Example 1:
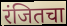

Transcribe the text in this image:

रंजितचा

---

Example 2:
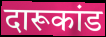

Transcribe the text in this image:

दारूकांड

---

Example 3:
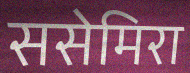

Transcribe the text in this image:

ससेमिरा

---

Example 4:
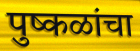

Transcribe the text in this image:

पुष्कळांचा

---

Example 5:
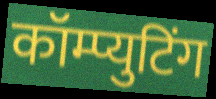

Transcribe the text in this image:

कॉम्प्युटिंग